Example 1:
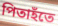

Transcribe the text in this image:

পিতাহঁতে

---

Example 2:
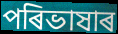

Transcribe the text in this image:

পৰিভাষাৰ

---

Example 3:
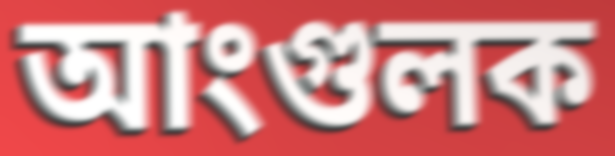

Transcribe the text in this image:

আংগুলক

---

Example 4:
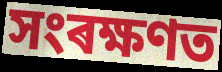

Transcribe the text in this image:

সংৰক্ষণত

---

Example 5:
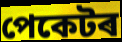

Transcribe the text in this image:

পেকেটৰ